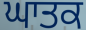
ਘਾਤਕ